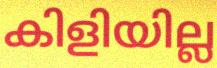
കിളിയില്ല